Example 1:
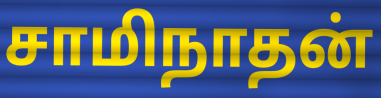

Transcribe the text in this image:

சாமிநாதன்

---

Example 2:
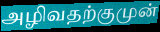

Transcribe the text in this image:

அழிவதற்குமுன்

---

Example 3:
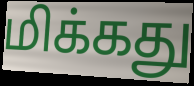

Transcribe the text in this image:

மிக்கது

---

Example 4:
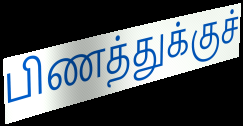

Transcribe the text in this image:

பிணத்துக்குச்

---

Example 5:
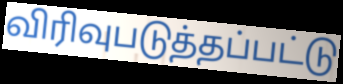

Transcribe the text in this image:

விரிவுபடுத்தப்பட்டு